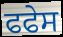
ਫਫੇਸ